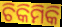
ଚିକିମିକି